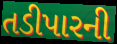
તડીપારની